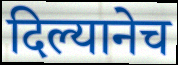
दिल्यानेच